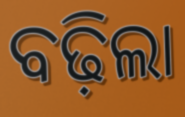
ବଢ଼ିଲା